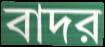
বাদর